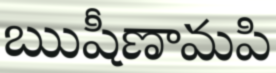
ఋషీణామపి